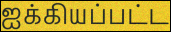
ஐக்கியப்பட்ட